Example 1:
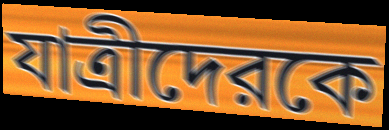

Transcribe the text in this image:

যাত্রীদেরকে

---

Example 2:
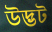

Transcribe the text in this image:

উদ্ভট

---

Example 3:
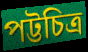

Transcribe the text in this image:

পট্টচিত্র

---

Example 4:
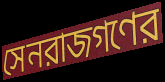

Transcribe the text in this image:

সেনরাজগণের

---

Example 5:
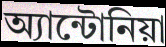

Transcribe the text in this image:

অ্যান্টোনিয়া